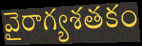
వైరాగ్యశతకం